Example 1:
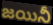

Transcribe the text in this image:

జయినీ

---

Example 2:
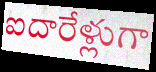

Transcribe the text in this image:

ఐదారేళ్లుగా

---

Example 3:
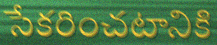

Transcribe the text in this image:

సేకరించటానికి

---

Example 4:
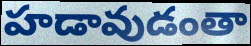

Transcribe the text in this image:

హడావుడంతా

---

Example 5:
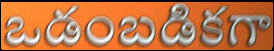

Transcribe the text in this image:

ఒడంబడికగా